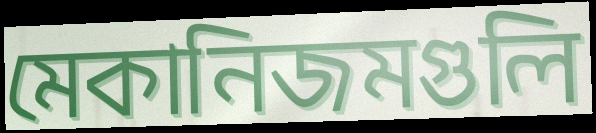
মেকানিজমগুলি